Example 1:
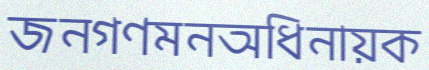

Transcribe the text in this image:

জনগণমনঅধিনায়ক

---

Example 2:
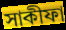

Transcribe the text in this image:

সাকীফা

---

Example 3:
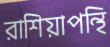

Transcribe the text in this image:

রাশিয়াপন্থি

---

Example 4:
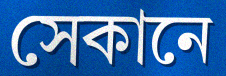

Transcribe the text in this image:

সেকানে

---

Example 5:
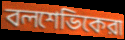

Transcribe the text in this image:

বলশেভিকেরা